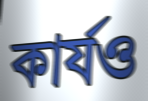
কার্যও